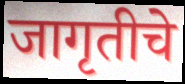
जागृतीचे